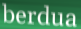
berdua